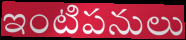
ఇంటిపనులు